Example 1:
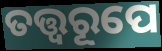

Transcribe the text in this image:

ତତ୍ତ୍ୱରୂପେ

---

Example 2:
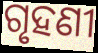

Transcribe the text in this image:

ଗୃହଣୀ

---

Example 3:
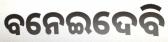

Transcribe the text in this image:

ବନେଇଦେବି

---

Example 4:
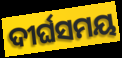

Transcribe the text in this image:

ଦୀର୍ଘସମୟ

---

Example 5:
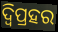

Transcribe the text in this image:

ଦ୍ବିପ୍ରହର